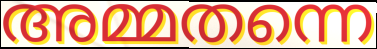
അമ്മതന്നെ